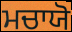
ਮਚਾਯੋ